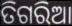
ତିଗରିଆ